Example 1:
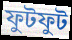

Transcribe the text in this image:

ফুটফুট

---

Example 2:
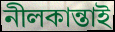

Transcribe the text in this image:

নীলকান্তাই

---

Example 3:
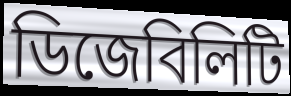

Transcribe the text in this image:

ডিজেবিলিটি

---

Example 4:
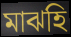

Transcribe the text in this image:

মাঝহি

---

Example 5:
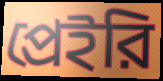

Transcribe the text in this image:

প্রেইরি